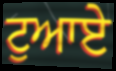
ਟੁਆਏ